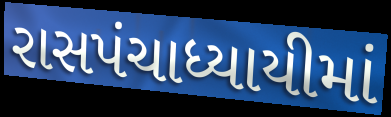
રાસપંચાધ્યાયીમાં